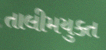
તાલીમયુક્ત